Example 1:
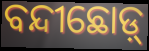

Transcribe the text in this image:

ବନ୍ଦୀଛୋଡ଼୍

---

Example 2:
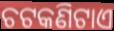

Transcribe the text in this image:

ଚଟକଣିଟାଏ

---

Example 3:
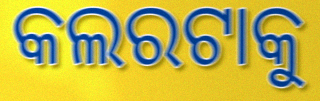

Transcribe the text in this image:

କଲରଟାକୁ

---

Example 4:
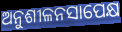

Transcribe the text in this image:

ଅନୁଶୀଳନସାପେକ୍ଷ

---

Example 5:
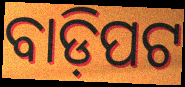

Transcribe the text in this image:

ବାଡ଼ିପଟ